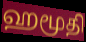
ஹமூதி